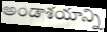
అండాశయాన్ని